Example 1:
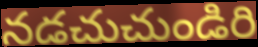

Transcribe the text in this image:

నడచుచుండిరి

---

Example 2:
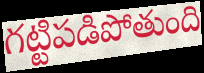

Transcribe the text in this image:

గట్టిపడిపోతుంది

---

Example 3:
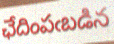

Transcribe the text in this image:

ఛేదింపఁబడిన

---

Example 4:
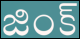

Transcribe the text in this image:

జింక్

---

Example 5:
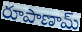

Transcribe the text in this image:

రూపాణామ్